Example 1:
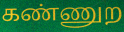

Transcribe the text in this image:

கண்ணுற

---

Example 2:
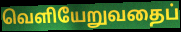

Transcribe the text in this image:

வெளியேறுவதைப்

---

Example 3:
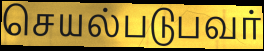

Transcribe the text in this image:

செயல்படுபவர்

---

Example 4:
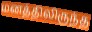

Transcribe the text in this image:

மனத்திலிருந்த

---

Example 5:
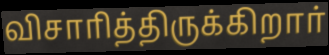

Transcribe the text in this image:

விசாரித்திருக்கிறார்